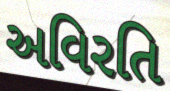
અવિરતિ